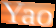
Yao